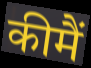
कीमैं